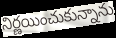
నిర్ణయించుకున్నాను